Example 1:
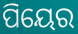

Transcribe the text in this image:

ପିୟେର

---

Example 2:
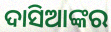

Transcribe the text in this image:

ଦାସିଆଙ୍କର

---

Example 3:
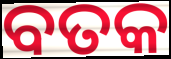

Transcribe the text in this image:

ବତକ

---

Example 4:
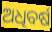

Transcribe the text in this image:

ଅଧିବର୍ଷ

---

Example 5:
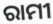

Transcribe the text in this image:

ରାମୀ